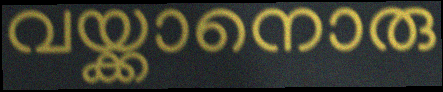
വയ്ക്കാനൊരു